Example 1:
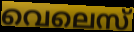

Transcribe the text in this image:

വെലെസ്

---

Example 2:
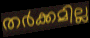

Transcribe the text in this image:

തർക്കമില്ല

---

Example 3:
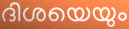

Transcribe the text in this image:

ദിശയെയും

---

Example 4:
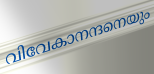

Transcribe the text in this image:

വിവേകാനന്ദനെയും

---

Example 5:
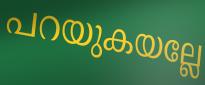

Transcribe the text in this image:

പറയുകയല്ലേ